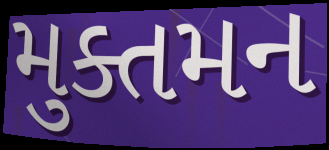
મુક્તમન